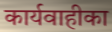
कार्यवाहीका